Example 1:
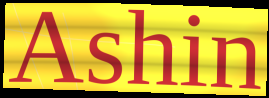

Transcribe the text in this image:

Ashin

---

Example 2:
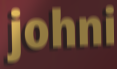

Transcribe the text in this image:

johni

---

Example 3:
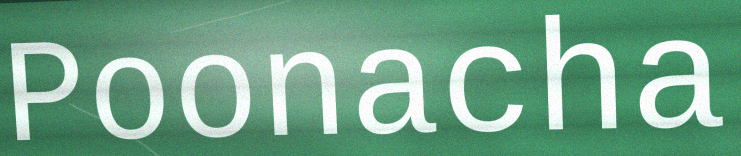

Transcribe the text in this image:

Poonacha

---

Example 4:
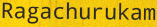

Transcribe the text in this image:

Ragachurukam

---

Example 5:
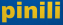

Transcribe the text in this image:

pinili